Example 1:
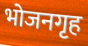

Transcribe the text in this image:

भोजनगृह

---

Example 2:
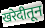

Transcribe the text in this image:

खरेदीतून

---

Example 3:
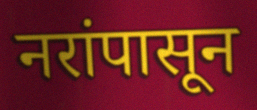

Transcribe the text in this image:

नरांपासून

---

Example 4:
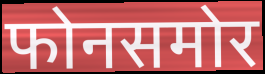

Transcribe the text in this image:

फोनसमोर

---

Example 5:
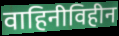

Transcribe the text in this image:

वाहिनीविहीन